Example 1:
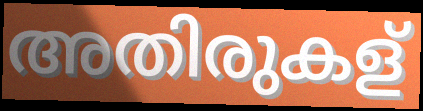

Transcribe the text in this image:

അതിരുകള്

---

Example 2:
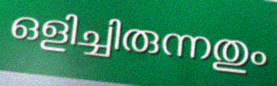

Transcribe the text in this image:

ഒളിച്ചിരുന്നതും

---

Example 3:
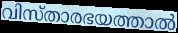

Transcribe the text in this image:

വിസ്താരഭയത്താൽ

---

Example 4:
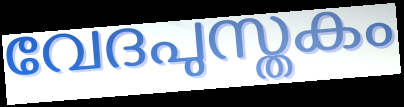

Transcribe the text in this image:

വേദപുസ്തകം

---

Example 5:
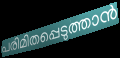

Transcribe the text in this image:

പരിമിതപ്പെടുത്താൻ